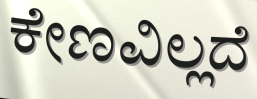
ಕೇಣವಿಲ್ಲದೆ